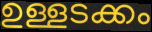
ഉള്ളടക്കം